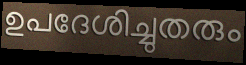
ഉപദേശിച്ചുതരും